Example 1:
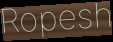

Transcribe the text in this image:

Ropesh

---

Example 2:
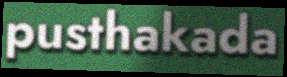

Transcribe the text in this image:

pusthakada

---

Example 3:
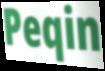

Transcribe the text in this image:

Peqin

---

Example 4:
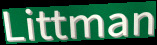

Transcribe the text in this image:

Littman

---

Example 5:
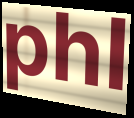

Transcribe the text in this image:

phl